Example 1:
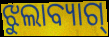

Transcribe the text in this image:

ଝୁଲାବ୍ୟାଗ୍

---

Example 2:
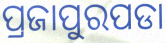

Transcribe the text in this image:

ପ୍ରଜାପୁରପଡା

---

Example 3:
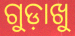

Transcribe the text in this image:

ଗୁଡ଼ାଖୁ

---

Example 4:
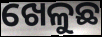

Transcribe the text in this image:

ଖେଳୁଛ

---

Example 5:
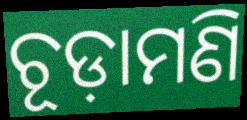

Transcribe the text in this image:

ଚୂଡ଼ାମଣି